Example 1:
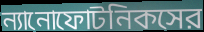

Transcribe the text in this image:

ন্যানোফোটনিকসের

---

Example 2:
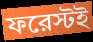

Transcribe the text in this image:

ফরেস্টই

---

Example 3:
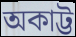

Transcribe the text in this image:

অকাট্ট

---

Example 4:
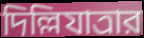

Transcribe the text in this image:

দিল্লিযাত্রার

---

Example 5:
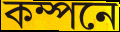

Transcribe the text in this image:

কম্পনে